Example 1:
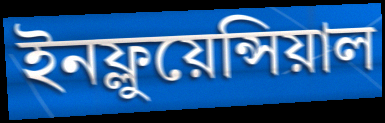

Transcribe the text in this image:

ইনফ্লুয়েন্সিয়াল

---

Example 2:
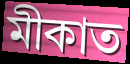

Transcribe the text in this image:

মীকাত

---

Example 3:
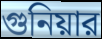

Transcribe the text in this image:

গুনিয়ার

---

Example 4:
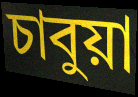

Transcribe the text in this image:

চাবুয়া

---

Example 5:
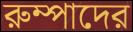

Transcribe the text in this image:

রুম্পাদের